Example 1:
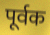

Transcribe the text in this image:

पूर्वक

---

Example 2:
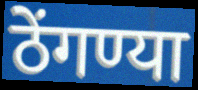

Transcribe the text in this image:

ठेंगण्या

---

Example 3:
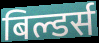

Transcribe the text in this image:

बिल्डर्स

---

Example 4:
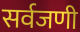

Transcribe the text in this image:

सर्वजणी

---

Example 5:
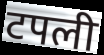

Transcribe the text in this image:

टपली